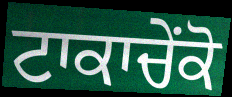
ਟਾਕਾਚੇਂਕੋ